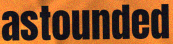
astounded